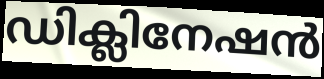
ഡിക്ലിനേഷൻ